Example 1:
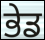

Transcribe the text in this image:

ਭੇਡ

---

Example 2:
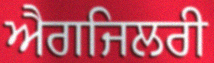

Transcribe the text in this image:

ਐਗਜਿਲਰੀ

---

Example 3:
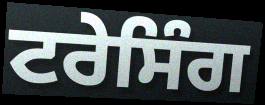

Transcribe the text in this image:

ਟਰੇਸਿੰਗ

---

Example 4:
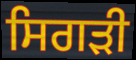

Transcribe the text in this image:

ਸਿਗੜੀ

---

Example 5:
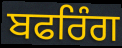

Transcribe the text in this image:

ਬਫਰਿੰਗ